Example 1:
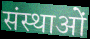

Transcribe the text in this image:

संस्थाओं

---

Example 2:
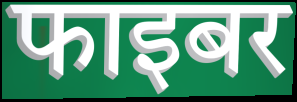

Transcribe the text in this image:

फाइबर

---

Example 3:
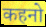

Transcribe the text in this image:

कहनो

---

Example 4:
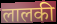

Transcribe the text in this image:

लालकी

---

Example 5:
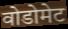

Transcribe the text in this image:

वोडोमेट